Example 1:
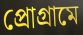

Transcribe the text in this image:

প্রোগ্রামে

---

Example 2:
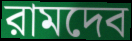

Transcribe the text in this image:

রামদেব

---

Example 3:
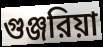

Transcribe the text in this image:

গুঞ্জরিয়া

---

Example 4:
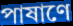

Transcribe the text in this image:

পাষাণে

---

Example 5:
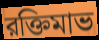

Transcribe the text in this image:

রক্তিমাভ